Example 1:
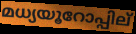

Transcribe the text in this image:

മധ്യയൂറോപ്പില്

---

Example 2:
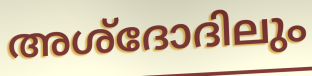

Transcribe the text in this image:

അശ്ദോദിലും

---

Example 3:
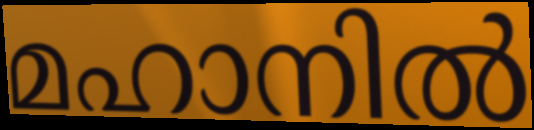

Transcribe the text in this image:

മഹാനിൽ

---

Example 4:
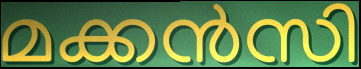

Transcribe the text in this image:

മക്കൻസി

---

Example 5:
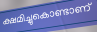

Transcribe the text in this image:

ക്ഷമിച്ചുകൊണ്ടാണ്